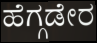
ಹೆಗ್ಗಡೇರ